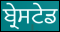
ਬ੍ਰੇਸਟੇਡ